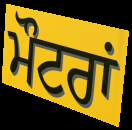
ਮੌਟਰਾਂ